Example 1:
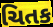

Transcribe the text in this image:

ચિતક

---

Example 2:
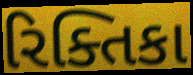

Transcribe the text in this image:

રિક્તિકા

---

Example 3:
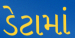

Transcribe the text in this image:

ડેટામાં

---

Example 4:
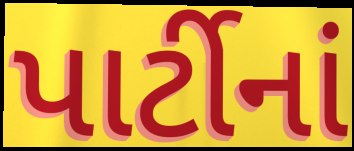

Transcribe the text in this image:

પાર્ટીનાં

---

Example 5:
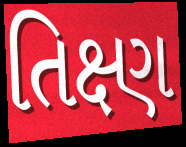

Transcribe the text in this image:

તિક્ષ્ણ